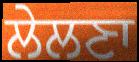
ਲੇਲਣਾ